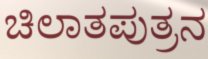
ಚಿಲಾತಪುತ್ರನ